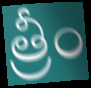
త్రీం